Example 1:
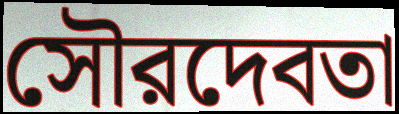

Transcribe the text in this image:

সৌরদেবতা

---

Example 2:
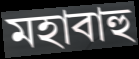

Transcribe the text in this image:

মহাবাহু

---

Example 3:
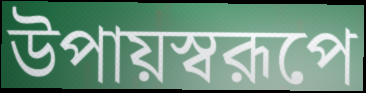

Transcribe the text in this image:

উপায়স্বরূপে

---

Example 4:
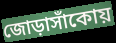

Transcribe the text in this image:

জোড়াসাঁকোয়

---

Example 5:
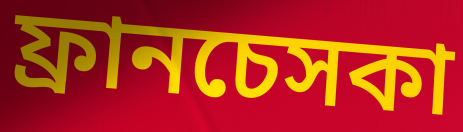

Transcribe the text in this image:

ফ্রানচেসকা